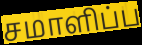
சமாளிப்ப